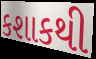
કશાકથી